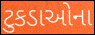
ટુકડાઓના